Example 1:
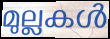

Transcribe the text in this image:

മുല്ലകൾ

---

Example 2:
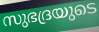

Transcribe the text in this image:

സുഭദ്രയുടെ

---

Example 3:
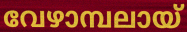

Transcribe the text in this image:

വേഴാമ്പലായ്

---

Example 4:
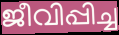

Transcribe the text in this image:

ജീവിപ്പിച്ച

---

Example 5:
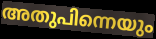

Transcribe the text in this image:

അതുപിന്നെയും